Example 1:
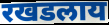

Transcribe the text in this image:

रखडलाय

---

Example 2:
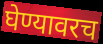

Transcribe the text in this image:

घेण्यावरच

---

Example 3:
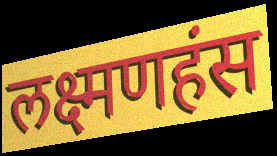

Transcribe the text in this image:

लक्ष्मणहंस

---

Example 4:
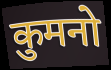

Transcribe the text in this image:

कुमनो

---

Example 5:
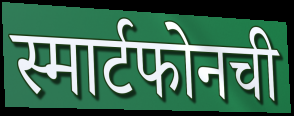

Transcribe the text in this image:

स्मार्टफोनची